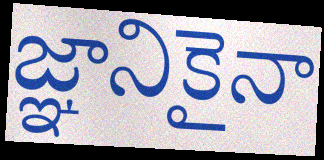
జ్ఞానికైనా